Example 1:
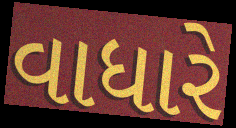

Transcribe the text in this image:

વાધારે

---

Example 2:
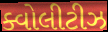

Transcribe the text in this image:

ક્વોલીટીઝ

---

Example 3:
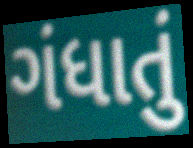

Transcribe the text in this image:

ગંધાતું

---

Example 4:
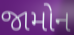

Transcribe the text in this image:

જામોન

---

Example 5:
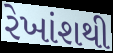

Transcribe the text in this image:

રેખાંશથી